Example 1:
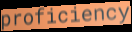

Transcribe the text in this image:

proficiency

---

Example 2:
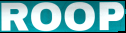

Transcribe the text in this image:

ROOP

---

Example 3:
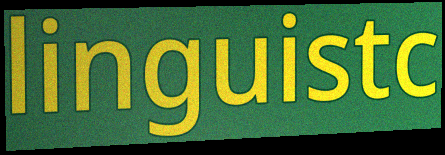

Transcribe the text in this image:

linguistc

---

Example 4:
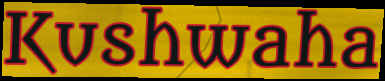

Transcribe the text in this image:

Kushwaha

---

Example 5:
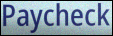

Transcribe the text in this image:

Paycheck